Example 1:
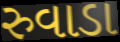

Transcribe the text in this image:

રુવાડા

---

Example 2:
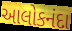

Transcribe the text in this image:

આલોકનંદા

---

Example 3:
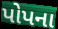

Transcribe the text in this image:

પોપના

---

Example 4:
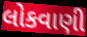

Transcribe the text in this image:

લોકવાણી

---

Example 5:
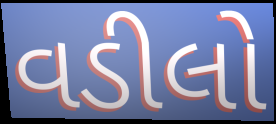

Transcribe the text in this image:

વડીલો